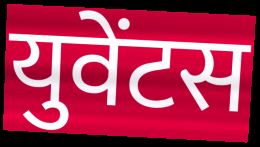
युवेंटस